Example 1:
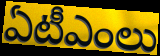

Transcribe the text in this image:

ఏటీఎంలు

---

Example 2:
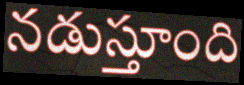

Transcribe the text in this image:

నడుస్తూంది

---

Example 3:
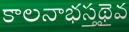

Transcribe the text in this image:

కాలనాభస్తథైవ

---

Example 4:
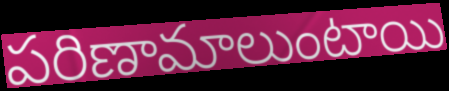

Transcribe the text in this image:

పరిణామాలుంటాయి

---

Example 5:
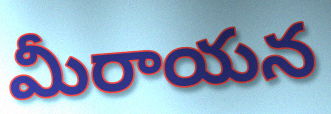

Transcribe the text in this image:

మీరాయన